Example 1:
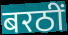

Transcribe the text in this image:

बरठीं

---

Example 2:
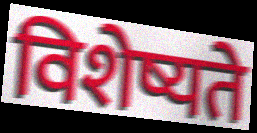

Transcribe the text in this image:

विशेष्यते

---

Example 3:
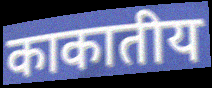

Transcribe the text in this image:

काकातीय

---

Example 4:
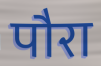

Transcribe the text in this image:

पौरा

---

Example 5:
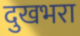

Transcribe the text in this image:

दुखभरा